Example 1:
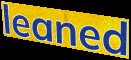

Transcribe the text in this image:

leaned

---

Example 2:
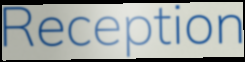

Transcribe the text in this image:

Reception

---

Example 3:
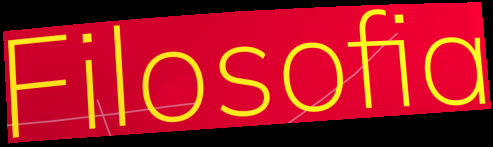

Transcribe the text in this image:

Filosofia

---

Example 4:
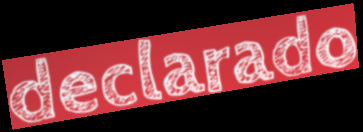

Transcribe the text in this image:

declarado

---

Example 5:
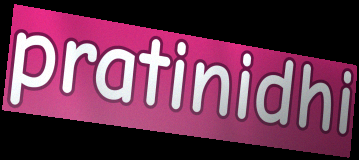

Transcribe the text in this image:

pratinidhi